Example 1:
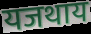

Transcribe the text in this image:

यजथाय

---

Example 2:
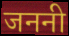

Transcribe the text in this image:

जननी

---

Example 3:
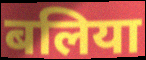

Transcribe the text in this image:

बलिया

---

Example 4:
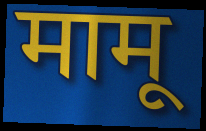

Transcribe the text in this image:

मामू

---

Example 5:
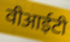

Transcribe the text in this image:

वीआईटी